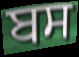
ਬਸ